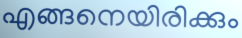
എങ്ങനെയിരിക്കും